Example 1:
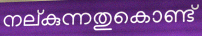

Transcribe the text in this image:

നല്കുന്നതുകൊണ്ട്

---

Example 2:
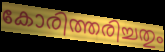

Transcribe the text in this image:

കോരിത്തരിച്ചതും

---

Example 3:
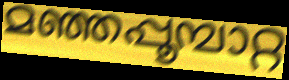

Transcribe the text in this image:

മഞ്ഞപ്പൂമ്പാറ്റ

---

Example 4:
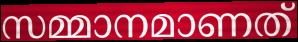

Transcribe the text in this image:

സമ്മാനമാണത്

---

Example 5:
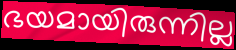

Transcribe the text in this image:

ഭയമായിരുന്നില്ല